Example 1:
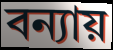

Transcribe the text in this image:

বন্যায়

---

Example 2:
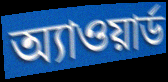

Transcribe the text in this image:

অ্যাওয়ার্ড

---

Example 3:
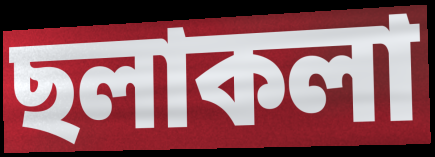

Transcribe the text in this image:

ছলাকলা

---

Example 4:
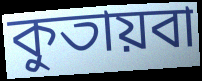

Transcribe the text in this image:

কুতায়বা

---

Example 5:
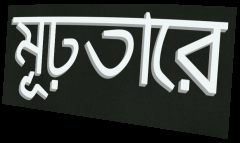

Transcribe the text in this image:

মূঢ়তারে